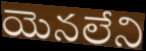
యెనలేని